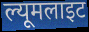
ल्यूमलाइट